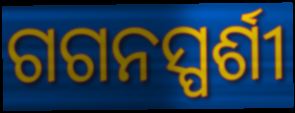
ଗଗନସ୍ପର୍ଶୀ